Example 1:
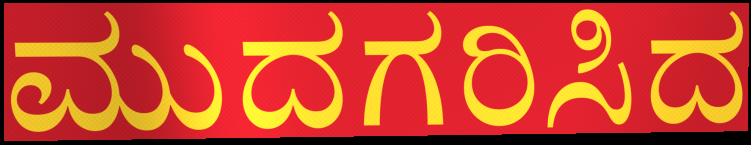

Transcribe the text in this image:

ಮುದಗರಿಸಿದ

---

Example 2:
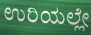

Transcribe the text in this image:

ಉರಿಯಲ್ಲೇ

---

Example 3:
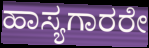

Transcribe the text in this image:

ಹಾಸ್ಯಗಾರರೇ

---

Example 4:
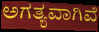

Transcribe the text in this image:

ಅಗತ್ಯವಾಗಿವೆ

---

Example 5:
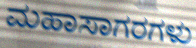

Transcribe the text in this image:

ಮಹಾಸಾಗರಗಳು